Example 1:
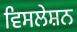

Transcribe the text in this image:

ਵਿਸਲੇਸ਼ਨ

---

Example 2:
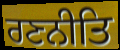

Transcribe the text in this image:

ਰਣਨੀਤਿ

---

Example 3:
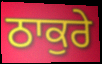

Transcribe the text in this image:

ਠਾਕੁਰੇ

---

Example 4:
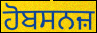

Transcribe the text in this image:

ਹੋਬਸਨਜ਼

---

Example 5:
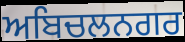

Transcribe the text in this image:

ਅਬਿਚਲਨਗਰ